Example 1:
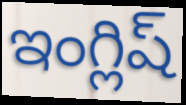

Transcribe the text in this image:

ఇంగ్లిష్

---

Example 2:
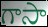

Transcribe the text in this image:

గాసా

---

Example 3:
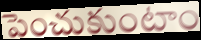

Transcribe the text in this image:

పెంచుకుంటాం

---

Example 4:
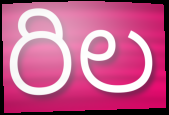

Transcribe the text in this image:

రిల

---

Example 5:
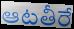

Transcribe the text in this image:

ఆటతీరే